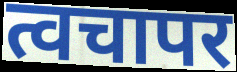
त्वचापर